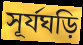
সূর্যঘড়ি